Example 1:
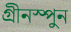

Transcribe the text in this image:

গ্রীনস্পুন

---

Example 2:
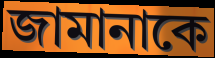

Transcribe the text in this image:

জামানাকে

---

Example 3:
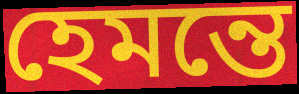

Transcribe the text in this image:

হেমন্তে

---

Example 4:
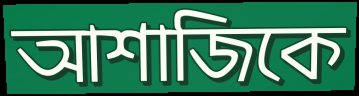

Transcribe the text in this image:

আশাজিকে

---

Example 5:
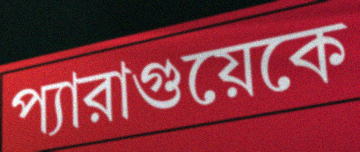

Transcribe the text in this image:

প্যারাগুয়েকে